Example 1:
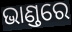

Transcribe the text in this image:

ଭାଣ୍ଡରେ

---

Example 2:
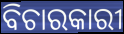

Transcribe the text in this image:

ବିଚାରକାରୀ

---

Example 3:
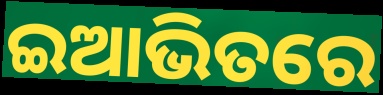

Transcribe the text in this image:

ଇଆଭିତରେ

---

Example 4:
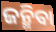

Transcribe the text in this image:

ଜନ୍ମିବା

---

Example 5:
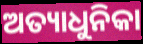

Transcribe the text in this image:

ଅତ୍ୟାଧୁନିକା